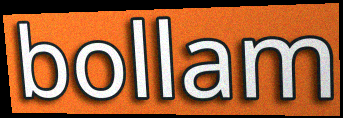
bollam